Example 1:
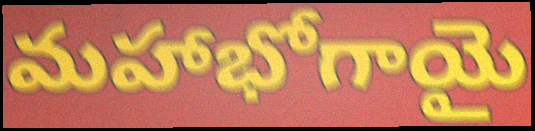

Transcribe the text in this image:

మహాభోగాయై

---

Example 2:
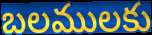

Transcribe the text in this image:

బలములకు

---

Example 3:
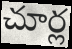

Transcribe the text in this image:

చూర్ల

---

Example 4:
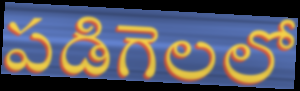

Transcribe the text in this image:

పడిగెలలో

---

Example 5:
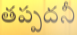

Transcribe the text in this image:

తప్పదనీ